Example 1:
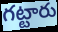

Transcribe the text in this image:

గట్టారు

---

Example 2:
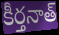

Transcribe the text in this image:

కీర్తనాత్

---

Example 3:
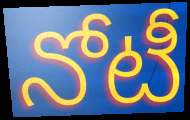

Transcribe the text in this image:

నోటీ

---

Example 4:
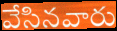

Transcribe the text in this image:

వేసినవారు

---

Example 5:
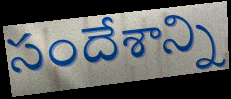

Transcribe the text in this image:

సందేశాన్ని